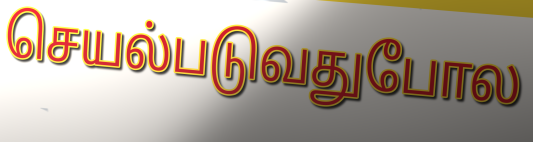
செயல்படுவதுபோல